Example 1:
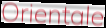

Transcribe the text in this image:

Orientale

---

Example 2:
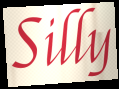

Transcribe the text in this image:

Silly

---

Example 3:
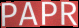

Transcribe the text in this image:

PAPR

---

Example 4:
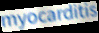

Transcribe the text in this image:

myocarditis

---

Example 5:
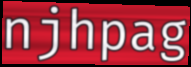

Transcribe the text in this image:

njhpag